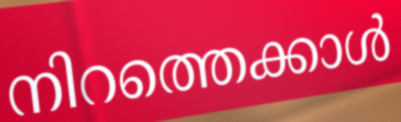
നിറത്തെക്കാൾ